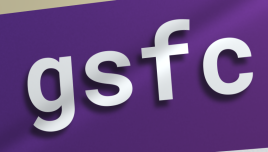
gsfc